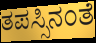
ತಪಸ್ಸಿನಂತೆ